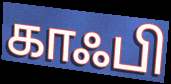
காஃபி